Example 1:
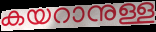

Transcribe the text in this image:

കയറാനുള്ള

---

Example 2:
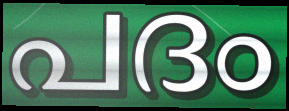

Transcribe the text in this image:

പദം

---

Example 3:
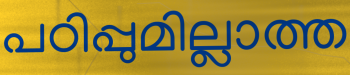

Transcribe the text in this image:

പഠിപ്പുമില്ലാത്ത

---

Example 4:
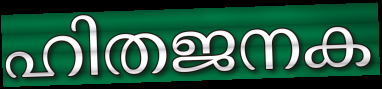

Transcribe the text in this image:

ഹിതജനക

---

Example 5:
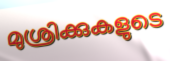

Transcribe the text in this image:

മുശ്രിക്കുകളുടെ